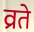
व्रते